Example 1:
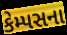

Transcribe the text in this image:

કેમ્પસના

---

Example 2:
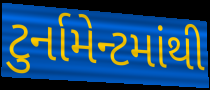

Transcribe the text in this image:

ટુર્નામેન્ટમાંથી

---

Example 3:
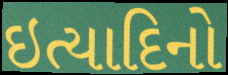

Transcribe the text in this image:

ઇત્યાદિનો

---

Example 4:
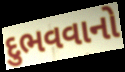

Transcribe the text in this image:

દુભવવાનો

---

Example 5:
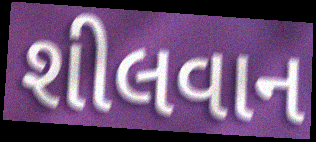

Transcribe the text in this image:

શીલવાન